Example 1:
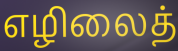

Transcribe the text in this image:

எழிலைத்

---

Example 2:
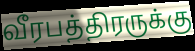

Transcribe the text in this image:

வீரபத்திரருக்கு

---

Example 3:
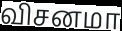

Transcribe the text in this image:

விசனமா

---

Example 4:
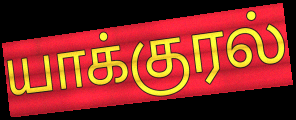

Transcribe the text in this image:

யாக்குரல்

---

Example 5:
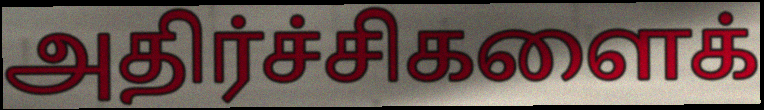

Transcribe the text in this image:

அதிர்ச்சிகளைக்